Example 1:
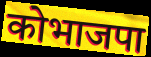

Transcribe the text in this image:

कोभाजपा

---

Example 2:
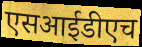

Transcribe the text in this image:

एसआईडीएच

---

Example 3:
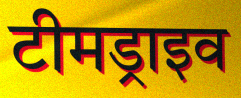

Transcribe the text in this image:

टीमड्राइव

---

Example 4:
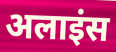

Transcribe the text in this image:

अलाइंस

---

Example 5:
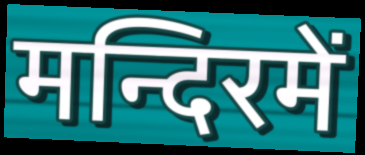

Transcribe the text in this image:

मन्दिरमें